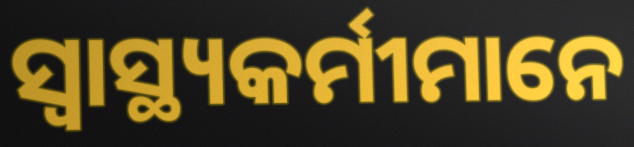
ସ୍ବାସ୍ଥ୍ୟକର୍ମୀମାନେ